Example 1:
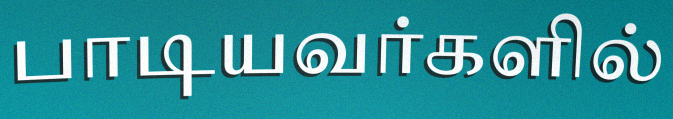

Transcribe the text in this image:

பாடியவர்களில்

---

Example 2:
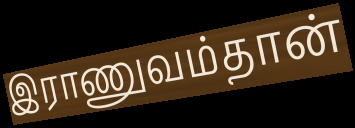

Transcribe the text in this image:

இராணுவம்தான்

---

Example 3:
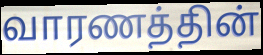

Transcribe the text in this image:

வாரணத்தின்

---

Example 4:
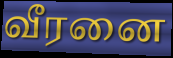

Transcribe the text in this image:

வீரனை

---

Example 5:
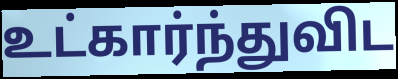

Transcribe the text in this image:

உட்கார்ந்துவிட